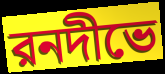
রনদীভে